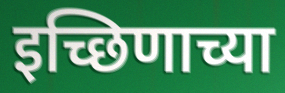
इच्छिणाच्या